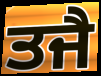
ਤਜੈ